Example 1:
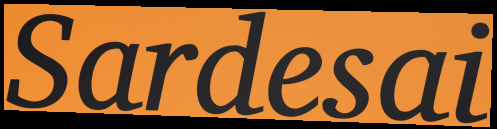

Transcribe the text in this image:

Sardesai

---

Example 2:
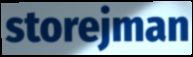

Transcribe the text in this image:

storejman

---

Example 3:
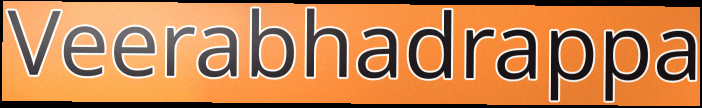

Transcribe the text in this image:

Veerabhadrappa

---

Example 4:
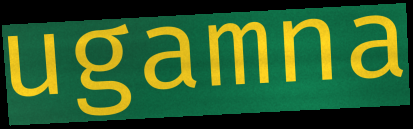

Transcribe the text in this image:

ugamna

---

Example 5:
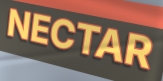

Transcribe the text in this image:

NECTAR